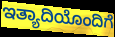
ಇತ್ಯಾದಿಯೊಂದಿಗೆ